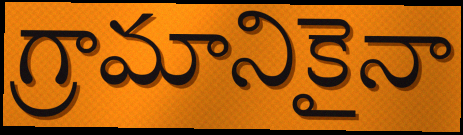
గ్రామానికైనా